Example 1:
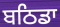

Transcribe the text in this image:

ਬਠਿਡਾ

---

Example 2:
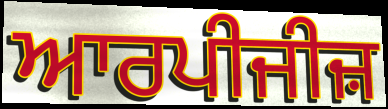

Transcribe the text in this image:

ਆਰਪੀਜੀਜ਼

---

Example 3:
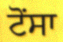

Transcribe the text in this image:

ਟੋਂਸਾ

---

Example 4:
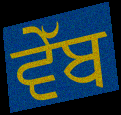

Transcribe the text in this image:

ਵੇੱਬ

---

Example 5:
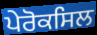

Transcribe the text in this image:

ਪੇਰੋਕਸਿਲ